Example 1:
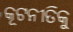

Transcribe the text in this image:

କୂଟନୀତିକୁ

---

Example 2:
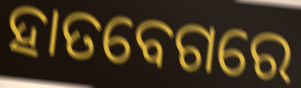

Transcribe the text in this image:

ହାତବେଗରେ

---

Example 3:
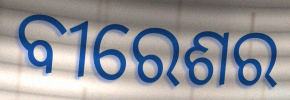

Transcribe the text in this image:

ବୀରେଶର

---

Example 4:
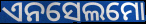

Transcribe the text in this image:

ଏନସେଲମୋ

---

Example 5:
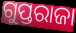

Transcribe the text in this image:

ଗୁପ୍ତରାଜା